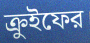
ক্রুইফের